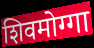
शिवमोग्गा